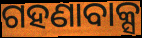
ଗହଣାବାକ୍ସ